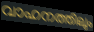
വാഹനത്തിലും